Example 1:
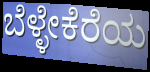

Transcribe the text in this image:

ಬೆಳ್ಳೇಕೆರೆಯ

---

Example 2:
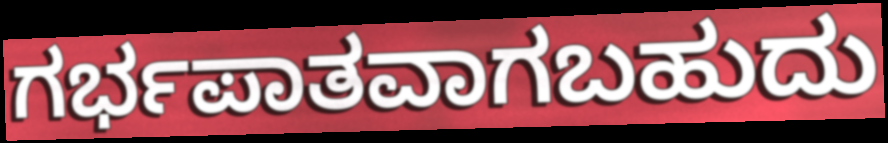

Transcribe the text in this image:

ಗರ್ಭಪಾತವಾಗಬಹುದು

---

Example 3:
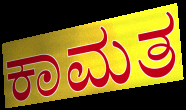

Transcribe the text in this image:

ಕಾಮತ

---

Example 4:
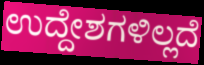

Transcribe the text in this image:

ಉದ್ದೇಶಗಳಿಲ್ಲದೆ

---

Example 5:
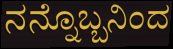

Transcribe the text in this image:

ನನ್ನೊಬ್ಬನಿಂದ